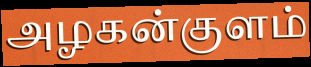
அழகன்குளம்